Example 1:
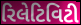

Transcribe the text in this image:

રિલેટિવિટી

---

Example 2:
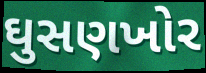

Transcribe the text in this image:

ઘુસણખોર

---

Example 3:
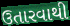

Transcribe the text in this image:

ઉતારવાથી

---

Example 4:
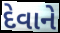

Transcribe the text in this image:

દેવાને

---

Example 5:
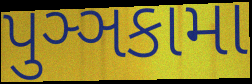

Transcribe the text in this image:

પુઞ્ઞકામા